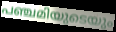
പഞ്ചമിയുടെയും